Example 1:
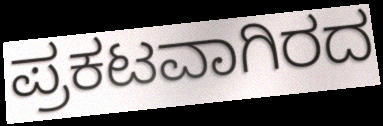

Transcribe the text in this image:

ಪ್ರಕಟವಾಗಿರದ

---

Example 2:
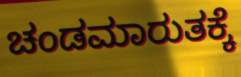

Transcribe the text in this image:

ಚಂಡಮಾರುತಕ್ಕೆ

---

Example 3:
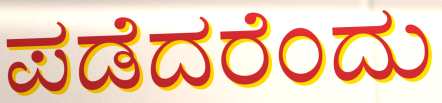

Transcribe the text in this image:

ಪಡೆದರೆಂದು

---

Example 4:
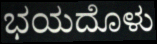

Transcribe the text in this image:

ಭಯದೊಳು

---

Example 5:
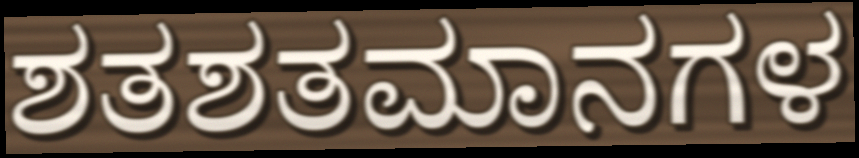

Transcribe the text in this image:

ಶತಶತಮಾನಗಳ